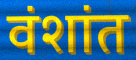
वंशांत